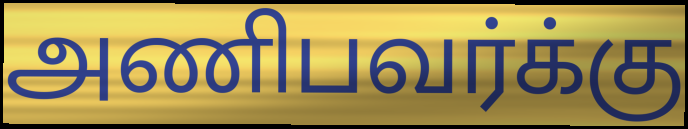
அணிபவர்க்கு